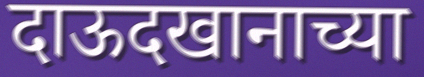
दाऊदखानाच्या